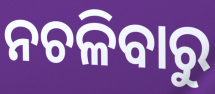
ନଚଳିବାରୁ